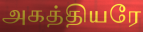
அகத்தியரே